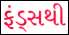
ફંડ્સથી